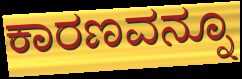
ಕಾರಣವನ್ನೂ